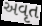
અવૃત